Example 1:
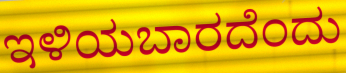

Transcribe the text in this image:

ಇಳಿಯಬಾರದೆಂದು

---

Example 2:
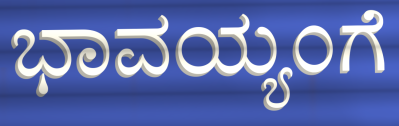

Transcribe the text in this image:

ಭಾವಯ್ಯಂಗೆ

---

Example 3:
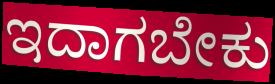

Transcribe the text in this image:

ಇದಾಗಬೇಕು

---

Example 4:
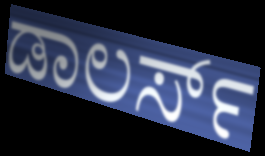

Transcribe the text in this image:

ಡಾಲರ್ಸ್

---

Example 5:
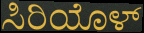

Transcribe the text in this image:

ಸಿರಿಯೊಳ್